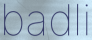
badli